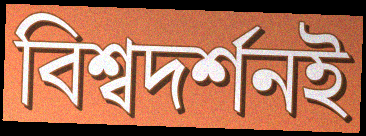
বিশ্বদর্শনই